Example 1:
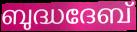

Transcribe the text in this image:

ബുദ്ധദേബ്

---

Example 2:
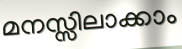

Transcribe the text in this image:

മനസ്സിലാക്കാം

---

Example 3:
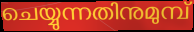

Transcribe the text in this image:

ചെയ്യുന്നതിനുമുമ്പ്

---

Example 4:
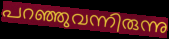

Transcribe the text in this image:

പറഞ്ഞുവന്നിരുന്നു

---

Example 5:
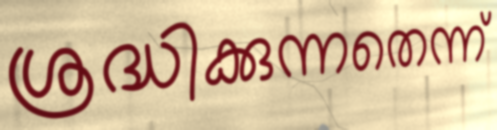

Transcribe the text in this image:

ശ്രദ്ധിക്കുന്നതെന്ന്